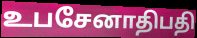
உபசேனாதிபதி